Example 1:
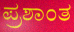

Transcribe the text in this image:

ಪ್ರಶಾಂತ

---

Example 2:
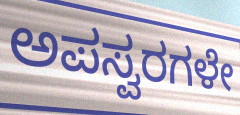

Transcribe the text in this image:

ಅಪಸ್ವರಗಳೇ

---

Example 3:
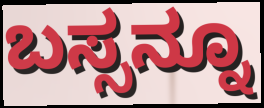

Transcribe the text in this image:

ಬಸ್ಸನ್ನೂ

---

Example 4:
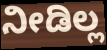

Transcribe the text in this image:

ನೀಡಿಲ್ಲ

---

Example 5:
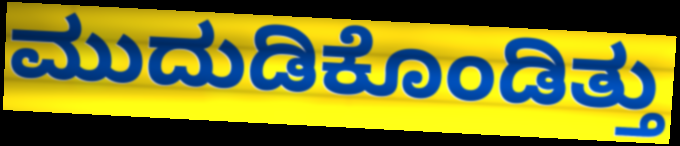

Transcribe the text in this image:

ಮುದುಡಿಕೊಂಡಿತ್ತು